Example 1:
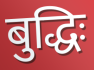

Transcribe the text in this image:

बुद्धिः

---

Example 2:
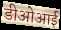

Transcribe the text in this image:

डीओआई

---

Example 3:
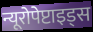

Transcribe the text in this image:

न्यूरोपेप्टाइड्स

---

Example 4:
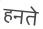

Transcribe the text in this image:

हनते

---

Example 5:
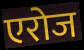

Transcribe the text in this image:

एरोज